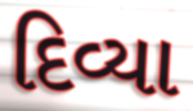
દિવ્યા